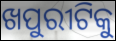
ଖପୁରୀଟିକୁ